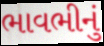
ભાવભીનું